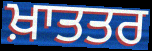
ਖ਼ਾਤਤਰ